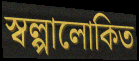
স্বল্পালোকিত